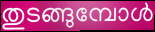
തുടങ്ങുമ്പോൾ